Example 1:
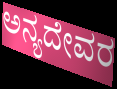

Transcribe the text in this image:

ಅನ್ಯದೇವರ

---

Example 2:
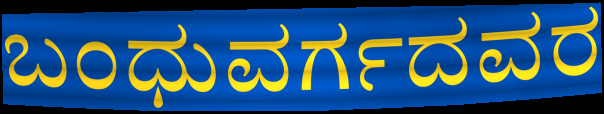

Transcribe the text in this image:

ಬಂಧುವರ್ಗದವರ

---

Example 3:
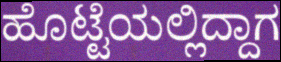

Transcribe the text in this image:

ಹೊಟ್ಟೆಯಲ್ಲಿದ್ದಾಗ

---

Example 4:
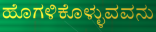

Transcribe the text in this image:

ಹೊಗಳಿಕೊಳ್ಳುವವನು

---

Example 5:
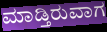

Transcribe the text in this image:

ಮಾಡ್ತಿರುವಾಗ